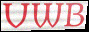
UWB